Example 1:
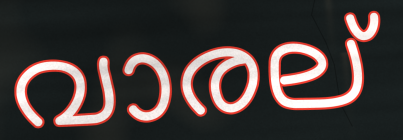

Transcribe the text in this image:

വാരല്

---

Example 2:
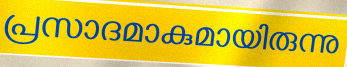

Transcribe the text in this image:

പ്രസാദമാകുമായിരുന്നു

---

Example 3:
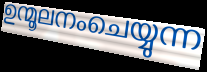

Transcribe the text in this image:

ഉന്മൂലനംചെയ്യുന്ന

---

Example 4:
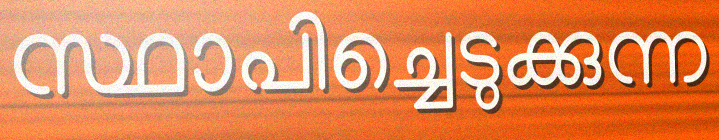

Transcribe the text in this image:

സ്ഥാപിച്ചെടുക്കുന്ന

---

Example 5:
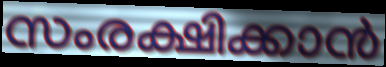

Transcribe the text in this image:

സംരക്ഷിക്കാൻ